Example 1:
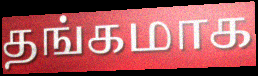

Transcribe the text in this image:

தங்கமாக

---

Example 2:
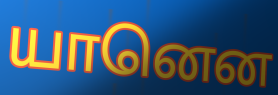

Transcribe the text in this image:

யானென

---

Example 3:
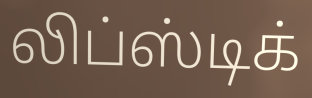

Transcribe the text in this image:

லிப்ஸ்டிக்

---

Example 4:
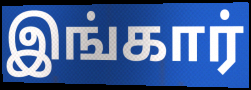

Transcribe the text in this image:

இங்கார்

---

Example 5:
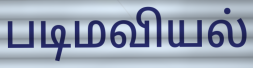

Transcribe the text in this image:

படிமவியல்